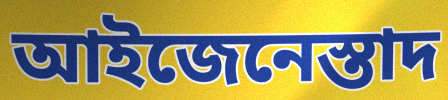
আইজেনেস্তাদ